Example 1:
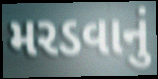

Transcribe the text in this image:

મરડવાનું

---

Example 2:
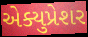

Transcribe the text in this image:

એક્યુપ્રેશર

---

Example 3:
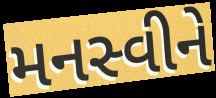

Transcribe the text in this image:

મનસ્વીને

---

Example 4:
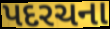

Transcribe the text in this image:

પદરચના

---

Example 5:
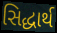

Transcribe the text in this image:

સિદ્ધાર્થ